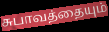
சுபாவத்தையும்